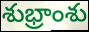
శుభ్రాంశు